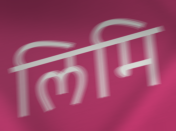
लिमि